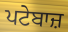
ਪਟੇਬਾਜ਼